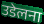
उडेलना